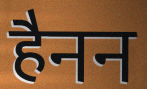
हैनन